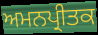
ਅਮਨਪ੍ਰੀਤਕ